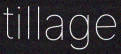
tillage